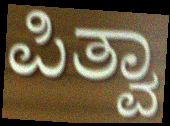
ಪಿತ್ವಾ